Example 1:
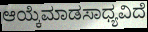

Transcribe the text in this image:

ಆಯ್ಕೆಮಾಡಸಾಧ್ಯವಿದೆ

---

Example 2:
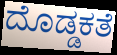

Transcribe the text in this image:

ದೊಡ್ಡಕತೆ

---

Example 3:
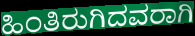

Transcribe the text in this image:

ಹಿಂತಿರುಗಿದವರಾಗಿ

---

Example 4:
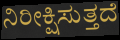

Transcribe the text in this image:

ನಿರೀಕ್ಷಿಸುತ್ತದೆ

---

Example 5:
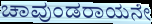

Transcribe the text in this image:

ಚಾವುಂಡರಾಯನೇ